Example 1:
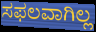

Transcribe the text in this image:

ಸಫಲವಾಗಿಲ್ಲ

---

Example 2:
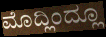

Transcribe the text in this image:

ಮೊದ್ಲಿಂದ್ಲೂ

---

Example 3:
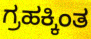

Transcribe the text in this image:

ಗ್ರಹಕ್ಕಿಂತ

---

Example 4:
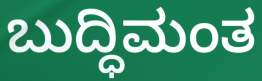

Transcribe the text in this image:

ಬುದ್ಧಿಮಂತ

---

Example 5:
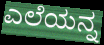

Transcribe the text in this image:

ಎಲೆಯನ್ನ